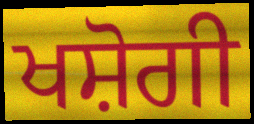
ਖਸ਼ੋਗੀ